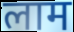
लाम